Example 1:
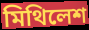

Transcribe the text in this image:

মিথিলেশ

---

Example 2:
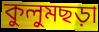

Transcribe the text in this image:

কুলুমছড়া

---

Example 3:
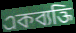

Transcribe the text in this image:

একব্যক্তি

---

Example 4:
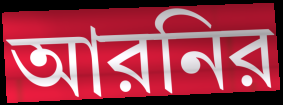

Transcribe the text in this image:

আরনির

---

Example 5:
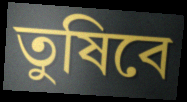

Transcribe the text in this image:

তুষিবে